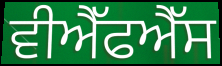
ਵੀਐੱਫਐੱਸ